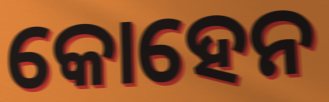
କୋହେନ